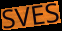
SVES